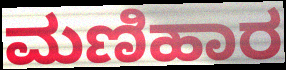
ಮಣಿಹಾರ